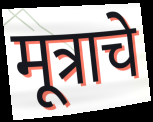
मूत्राचे